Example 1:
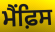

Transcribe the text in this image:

ਮੈਂਫ਼ਿਸ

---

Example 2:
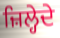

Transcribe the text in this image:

ਜ਼ਿਲ੍ਹੇਦੇ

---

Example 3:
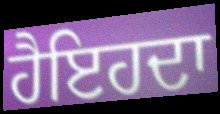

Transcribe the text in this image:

ਹੈਇਹਦਾ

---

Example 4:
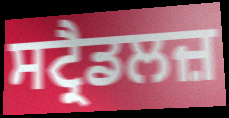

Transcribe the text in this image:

ਸਟ੍ਰੈਡਲਜ਼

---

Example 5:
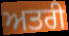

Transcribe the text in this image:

ਅਤਰੀ